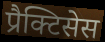
प्रैक्टिसेस